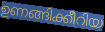
ഉണങ്ങിക്കീറിയ